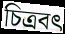
চিত্ৰবৎ